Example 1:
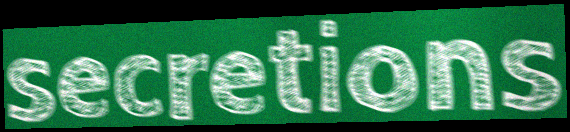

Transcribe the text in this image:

secretions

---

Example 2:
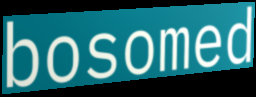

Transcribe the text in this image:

bosomed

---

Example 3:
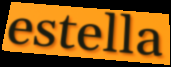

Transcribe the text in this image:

estella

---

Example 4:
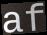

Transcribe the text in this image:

af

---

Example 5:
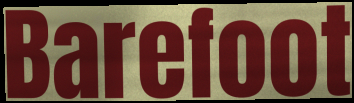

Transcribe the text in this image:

Barefoot